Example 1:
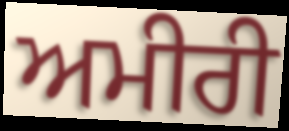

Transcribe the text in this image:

ਅਮੀਰੀ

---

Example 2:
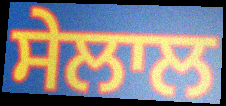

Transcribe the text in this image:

ਸੇਲਾਲ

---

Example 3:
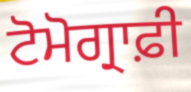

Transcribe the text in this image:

ਟੋਮੋਗ੍ਰਾਫ਼ੀ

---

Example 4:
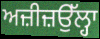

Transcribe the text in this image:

ਅਜ਼ੀਜ਼ਉੱਲ੍ਹਾ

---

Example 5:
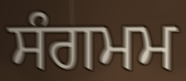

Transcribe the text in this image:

ਸੰਗਮਮ